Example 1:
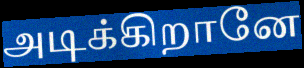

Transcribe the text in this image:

அடிக்கிறானே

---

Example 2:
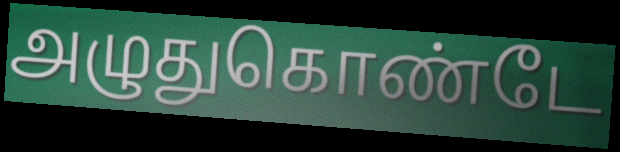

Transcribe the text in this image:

அழுதுகொண்டே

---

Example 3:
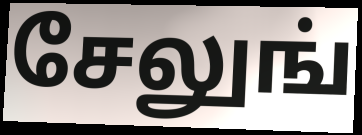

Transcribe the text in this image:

சேலுங்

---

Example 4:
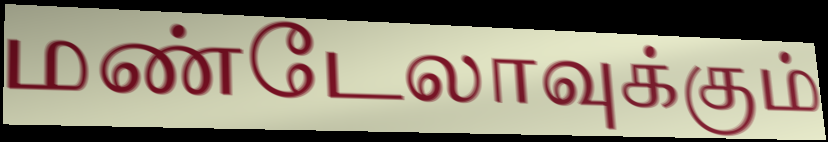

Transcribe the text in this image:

மண்டேலாவுக்கும்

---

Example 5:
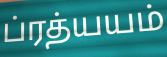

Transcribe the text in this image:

ப்ரத்யயம்